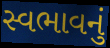
સ્વભાવનું